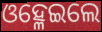
ଓହ୍ଳେଇଲେ